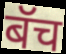
बॅच